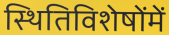
स्थितिविशेषोंमें